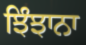
ਝਿੰਝਾਨਾ